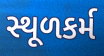
સ્થૂળકર્મ